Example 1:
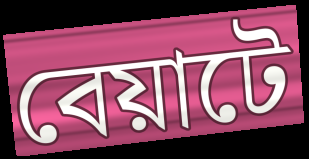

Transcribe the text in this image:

বেয়াটে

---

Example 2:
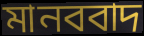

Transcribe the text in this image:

মানববাদ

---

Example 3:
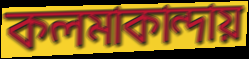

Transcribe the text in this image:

কলমাকান্দায়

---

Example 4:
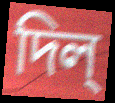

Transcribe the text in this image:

দিল্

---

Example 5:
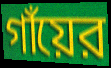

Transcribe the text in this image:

গাঁয়ের